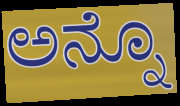
ಅನ್ನೊ